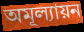
অমূল্যায়ন